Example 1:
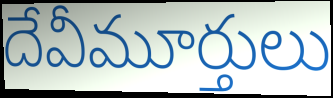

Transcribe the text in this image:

దేవీమూర్తులు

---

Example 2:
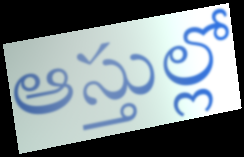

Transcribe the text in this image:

ఆస్తుల్లో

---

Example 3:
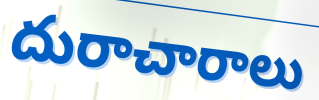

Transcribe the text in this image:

దురాచారాలు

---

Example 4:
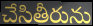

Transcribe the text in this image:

చేసితీరును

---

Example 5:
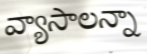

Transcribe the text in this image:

వ్యాసాలన్నా